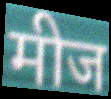
मीज